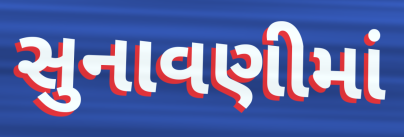
સુનાવણીમાં